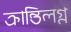
ক্রান্তিলগ্ন